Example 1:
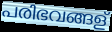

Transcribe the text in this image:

പരിഭവങ്ങള്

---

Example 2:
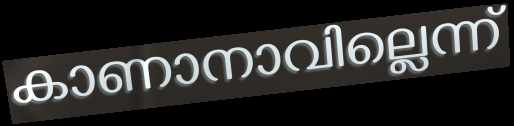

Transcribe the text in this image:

കാണാനാവില്ലെന്ന്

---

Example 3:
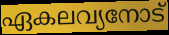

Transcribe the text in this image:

ഏകലവ്യനോട്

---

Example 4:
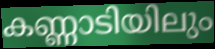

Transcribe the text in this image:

കണ്ണാടിയിലും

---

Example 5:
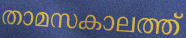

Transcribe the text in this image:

താമസകാലത്ത്